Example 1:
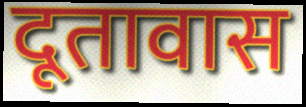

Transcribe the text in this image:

दूतावास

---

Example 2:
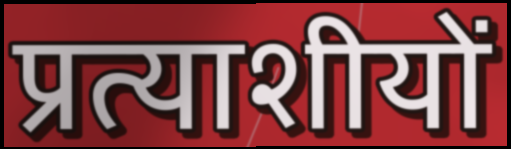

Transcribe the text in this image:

प्रत्याशीयों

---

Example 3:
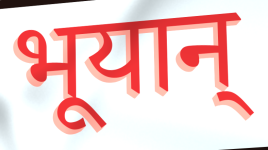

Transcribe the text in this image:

भूयान्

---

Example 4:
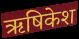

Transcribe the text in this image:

ऋषिकेश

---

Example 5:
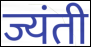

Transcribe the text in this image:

ज्यंती